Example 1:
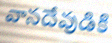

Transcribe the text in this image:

వానదేవుడికి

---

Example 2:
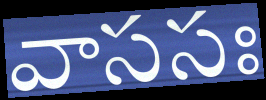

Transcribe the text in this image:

వాససః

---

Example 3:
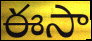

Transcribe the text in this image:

ఈసా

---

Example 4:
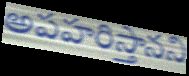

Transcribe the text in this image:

అపహరిస్తానని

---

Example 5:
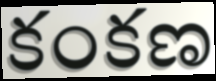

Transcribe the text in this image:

కంకణ